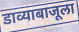
डाव्याबाजूला